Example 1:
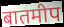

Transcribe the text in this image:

बातमीप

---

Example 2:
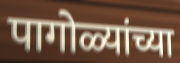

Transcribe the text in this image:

पागोळ्यांच्या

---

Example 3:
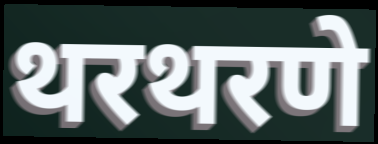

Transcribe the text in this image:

थरथरणे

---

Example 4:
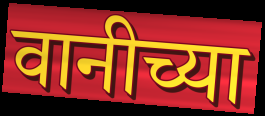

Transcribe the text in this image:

वानीच्या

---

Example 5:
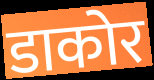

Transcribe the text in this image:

डाकोर